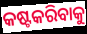
କଷ୍ଟକରିବାକୁ